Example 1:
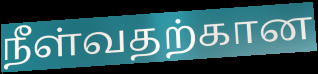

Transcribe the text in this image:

நீள்வதற்கான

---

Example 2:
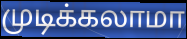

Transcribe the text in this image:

முடிக்கலாமா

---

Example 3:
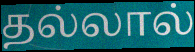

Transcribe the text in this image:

தல்லால்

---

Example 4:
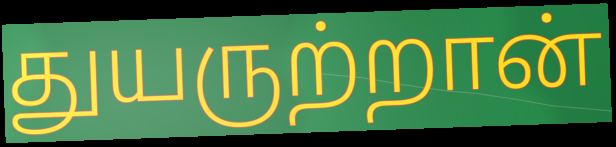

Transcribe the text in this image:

துயருற்றான்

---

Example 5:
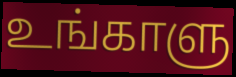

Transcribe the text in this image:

உங்காளு